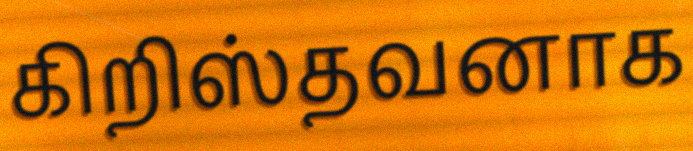
கிறிஸ்தவனாக